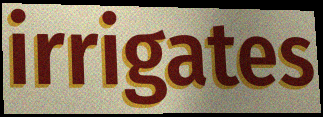
irrigates